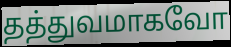
தத்துவமாகவோ